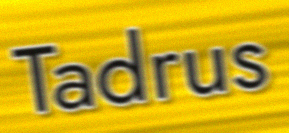
Tadrus